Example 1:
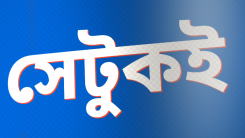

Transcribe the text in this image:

সেটুকই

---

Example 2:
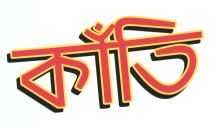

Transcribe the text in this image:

কাঁতি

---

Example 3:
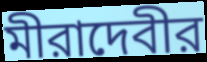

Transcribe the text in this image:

মীরাদেবীর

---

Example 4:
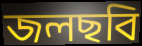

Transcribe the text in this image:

জলছবি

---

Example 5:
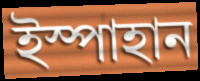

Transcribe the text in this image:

ইস্পাহান